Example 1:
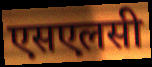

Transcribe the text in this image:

एसएलसी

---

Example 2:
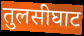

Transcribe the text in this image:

तुलसीघाट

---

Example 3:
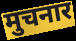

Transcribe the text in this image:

मुचनार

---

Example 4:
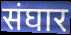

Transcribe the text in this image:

संघार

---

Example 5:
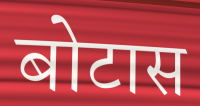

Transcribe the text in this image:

बोटास